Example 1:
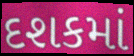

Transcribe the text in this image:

દશકમાં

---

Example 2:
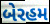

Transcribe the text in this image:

બેરહમ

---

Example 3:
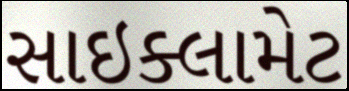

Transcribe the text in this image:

સાઇક્લામેટ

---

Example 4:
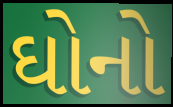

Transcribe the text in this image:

ઘોનો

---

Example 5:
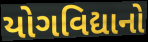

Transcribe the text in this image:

યોગવિદ્યાનો